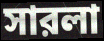
সারলা